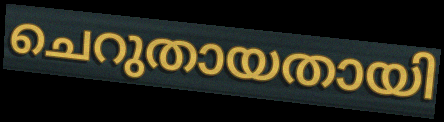
ചെറുതായതായി